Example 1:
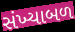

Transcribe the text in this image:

સંખ્યાબળ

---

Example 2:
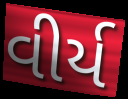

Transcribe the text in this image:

વીર્ય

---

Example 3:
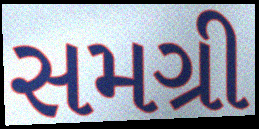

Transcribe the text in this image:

સમગ્રી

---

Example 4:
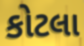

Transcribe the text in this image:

કોટલા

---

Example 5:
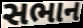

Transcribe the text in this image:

સભાન